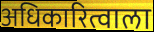
अधिकारित्वाला